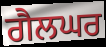
ਗੈਲਘਰ